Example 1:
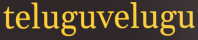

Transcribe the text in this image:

teluguvelugu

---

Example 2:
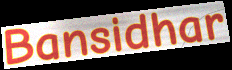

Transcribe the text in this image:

Bansidhar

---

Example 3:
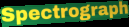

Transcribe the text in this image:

Spectrograph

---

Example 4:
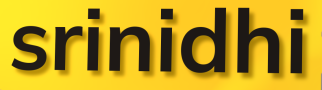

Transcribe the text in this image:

srinidhi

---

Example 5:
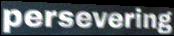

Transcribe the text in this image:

persevering